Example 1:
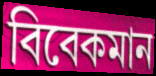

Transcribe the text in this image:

বিবেকমান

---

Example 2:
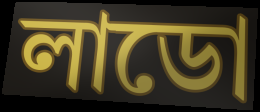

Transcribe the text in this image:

লাডো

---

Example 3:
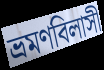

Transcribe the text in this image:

ভ্রমণবিলাসী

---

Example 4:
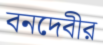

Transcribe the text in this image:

বনদেবীর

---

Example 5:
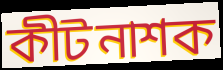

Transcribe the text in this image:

কীটনাশক